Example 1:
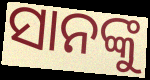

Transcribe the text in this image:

ସାନଙ୍କୁ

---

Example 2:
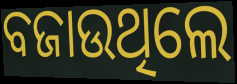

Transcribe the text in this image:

ବଜାଉଥିଲେ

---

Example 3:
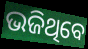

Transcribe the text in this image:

ଭଜିଥିବେ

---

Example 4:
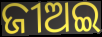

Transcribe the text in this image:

ଜୀଅଇ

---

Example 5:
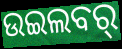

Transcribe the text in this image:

ଉଇଲବର୍